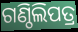
ଗଣ୍ଠିଲିପତ୍ର